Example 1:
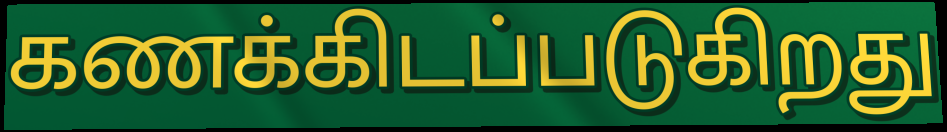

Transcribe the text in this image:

கணக்கிடப்படுகிறது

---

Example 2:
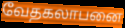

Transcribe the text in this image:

வேதகலாபனை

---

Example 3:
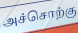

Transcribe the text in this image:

அச்சொற்கு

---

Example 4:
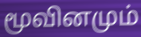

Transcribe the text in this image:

மூவினமும்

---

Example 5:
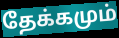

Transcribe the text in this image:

தேக்கமும்